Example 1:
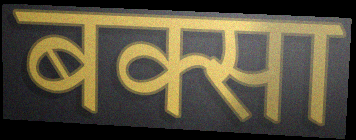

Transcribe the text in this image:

बक्सा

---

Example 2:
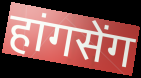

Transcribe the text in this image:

हांगसेंग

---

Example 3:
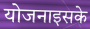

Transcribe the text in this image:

योजनाइसके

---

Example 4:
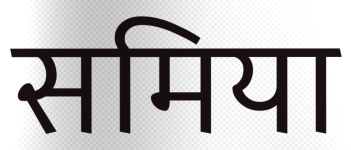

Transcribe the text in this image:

समिया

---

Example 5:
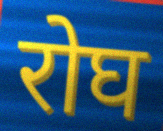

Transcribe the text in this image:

रोघ